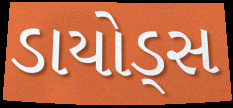
ડાયોડ્સ